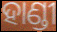
ହାଣ୍ଡୀ